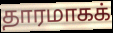
தாரமாகக்